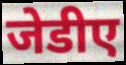
जेडीए